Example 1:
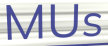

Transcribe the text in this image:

MUs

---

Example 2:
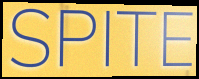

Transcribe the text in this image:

SPITE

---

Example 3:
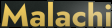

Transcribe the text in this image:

Malachi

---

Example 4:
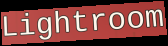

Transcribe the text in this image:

Lightroom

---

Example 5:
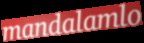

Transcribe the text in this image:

mandalamlo